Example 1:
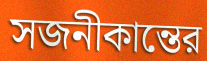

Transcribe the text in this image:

সজনীকান্তের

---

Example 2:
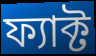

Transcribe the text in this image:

ফ্যাক্ট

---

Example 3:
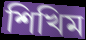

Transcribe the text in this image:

শিখিম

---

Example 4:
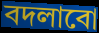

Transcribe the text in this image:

বদলাবো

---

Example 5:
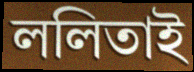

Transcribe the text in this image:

ললিতাই